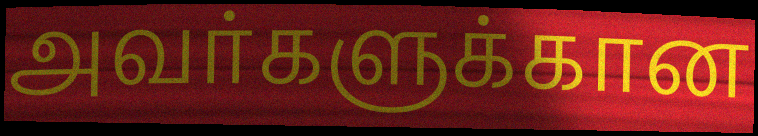
அவர்களுக்கான